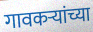
गावकर्‍यांच्या